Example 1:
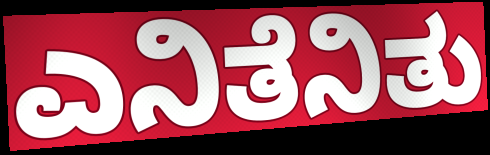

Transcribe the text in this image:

ಎನಿತೆನಿತು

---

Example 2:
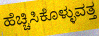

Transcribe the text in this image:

ಹೆಚ್ಚಿಸಿಕೊಳ್ಳುವತ್ತ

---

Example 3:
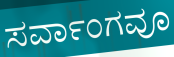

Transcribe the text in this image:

ಸರ್ವಾಂಗವೂ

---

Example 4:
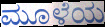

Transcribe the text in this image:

ಮೂಳೆಯ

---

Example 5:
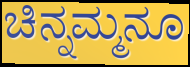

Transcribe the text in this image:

ಚಿನ್ನಮ್ಮನೂ